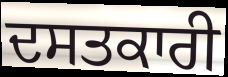
ਦਸਤਕਾਰੀ